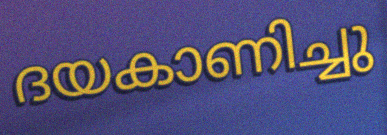
ദയകാണിച്ചു